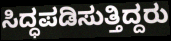
ಸಿದ್ಧಪಡಿಸುತ್ತಿದ್ದರು